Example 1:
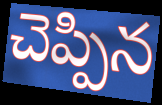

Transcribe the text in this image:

చెప్పిన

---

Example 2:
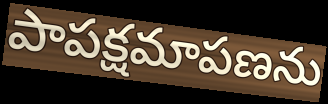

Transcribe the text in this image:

పాపక్షమాపణను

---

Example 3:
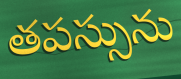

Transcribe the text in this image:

తపస్సును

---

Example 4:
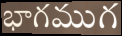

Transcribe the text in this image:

భాగముగ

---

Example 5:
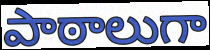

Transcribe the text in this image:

పాఠాలుగా